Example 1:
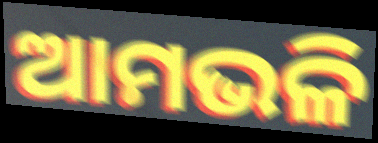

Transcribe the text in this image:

ଆମଭଳି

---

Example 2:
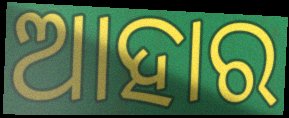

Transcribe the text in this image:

ଆହାର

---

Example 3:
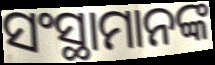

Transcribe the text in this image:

ସଂସ୍ଥାମାନଙ୍କ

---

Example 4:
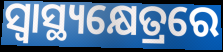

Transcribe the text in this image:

ସ୍ୱାସ୍ଥ୍ୟକ୍ଷେତ୍ରରେ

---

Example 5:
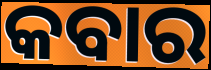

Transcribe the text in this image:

କବାର